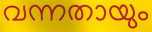
വന്നതായും